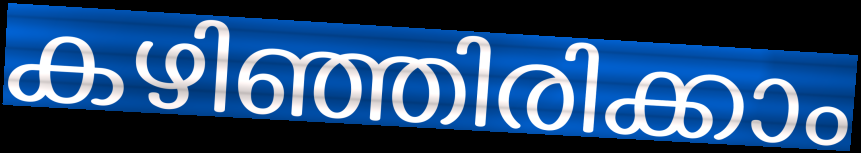
കഴിഞ്ഞിരിക്കാം